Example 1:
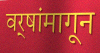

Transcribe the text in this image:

वर्षांमागून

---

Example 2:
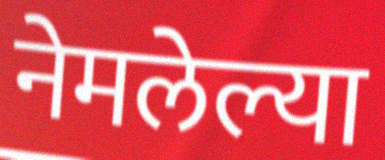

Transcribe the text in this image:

नेमलेल्या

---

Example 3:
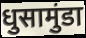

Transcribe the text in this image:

धुसामुंडा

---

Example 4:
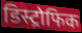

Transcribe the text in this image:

डिस्ट्रोफिक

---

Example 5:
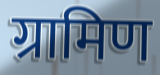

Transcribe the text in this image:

ग्रामिण